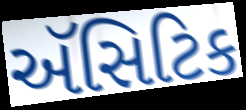
ઍસિટિક